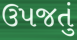
ઉપજતું